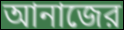
আনাজের